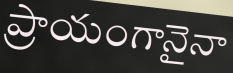
ప్రాయంగానైనా